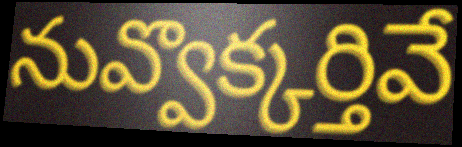
నువ్వొక్కర్తివే